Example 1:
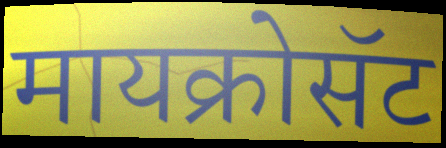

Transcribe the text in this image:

मायक्रोसॅट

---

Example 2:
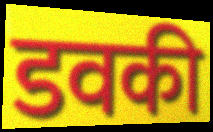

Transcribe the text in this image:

डवकी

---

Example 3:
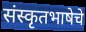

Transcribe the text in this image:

संस्कृतभाषेचे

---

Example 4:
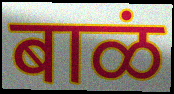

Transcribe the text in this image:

बाळं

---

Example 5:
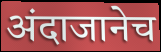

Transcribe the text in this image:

अंदाजानेच